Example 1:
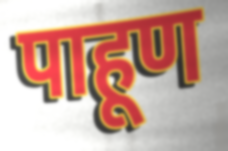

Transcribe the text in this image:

पाहूण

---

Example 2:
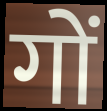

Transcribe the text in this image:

गों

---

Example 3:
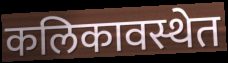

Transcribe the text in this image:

कलिकावस्थेत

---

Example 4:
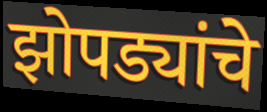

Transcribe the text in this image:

झोपड्यांचे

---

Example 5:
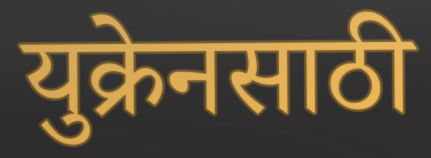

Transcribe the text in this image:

युक्रेनसाठी